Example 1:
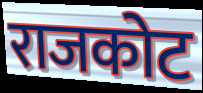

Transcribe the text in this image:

राजकोट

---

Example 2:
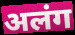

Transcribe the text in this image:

अलंग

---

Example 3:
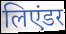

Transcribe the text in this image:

लिएंडर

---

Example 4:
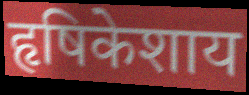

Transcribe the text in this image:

हृषिकेशाय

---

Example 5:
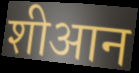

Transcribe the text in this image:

शीआन